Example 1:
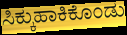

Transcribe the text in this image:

ಸಿಕ್ಕುಹಾಕಿಕೊಂಡು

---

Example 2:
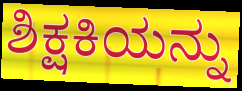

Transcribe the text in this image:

ಶಿಕ್ಷಕಿಯನ್ನು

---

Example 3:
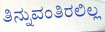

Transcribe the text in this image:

ತಿನ್ನುವಂತಿರಲಿಲ್ಲ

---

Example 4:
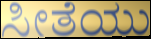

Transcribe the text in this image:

ಸೀತೆಯು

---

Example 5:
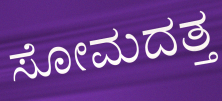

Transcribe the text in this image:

ಸೋಮದತ್ತ